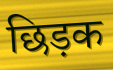
छिड़क